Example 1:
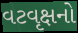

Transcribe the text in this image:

વટવૃક્ષનો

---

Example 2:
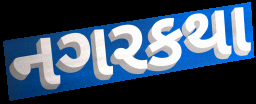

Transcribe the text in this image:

નગરકથા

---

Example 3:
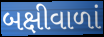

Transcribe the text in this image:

બક્ષીવાળાં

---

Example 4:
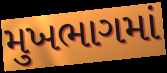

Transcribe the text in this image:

મુખભાગમાં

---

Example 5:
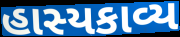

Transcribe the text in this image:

હાસ્યકાવ્ય